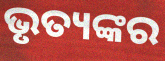
ଭୃତ୍ୟଙ୍କର